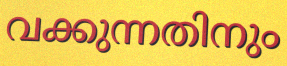
വക്കുന്നതിനും